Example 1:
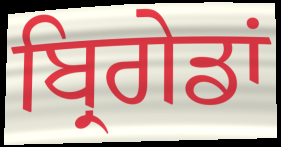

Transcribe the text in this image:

ਬ੍ਰਿਗੇਡਾਂ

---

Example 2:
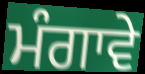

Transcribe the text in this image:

ਮੰਗਾਵੇ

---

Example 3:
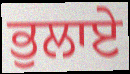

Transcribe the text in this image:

ਭੁਲਾਏ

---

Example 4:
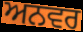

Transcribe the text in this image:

ਅਨਵਰ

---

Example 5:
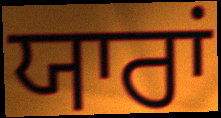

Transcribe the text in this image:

ਯਾਰਾਂ